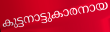
കുട്ടനാട്ടുകാരനായ